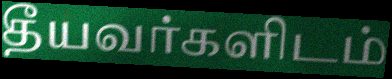
தீயவர்களிடம்